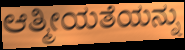
ಆತ್ಮೀಯತೆಯನ್ನು